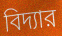
বিদ্যার